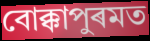
বোক্কাপুৰমত